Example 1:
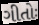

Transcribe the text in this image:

ગીતોઃ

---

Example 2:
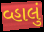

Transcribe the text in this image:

વ્હાલું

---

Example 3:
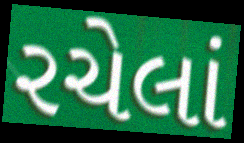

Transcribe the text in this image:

રચેલાં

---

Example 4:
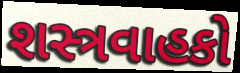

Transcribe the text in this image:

શસ્ત્રવાહકો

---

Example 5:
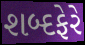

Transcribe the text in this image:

શબ્દફેરે